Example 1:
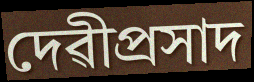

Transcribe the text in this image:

দেৱীপ্ৰসাদ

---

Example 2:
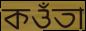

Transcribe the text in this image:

কওঁতা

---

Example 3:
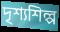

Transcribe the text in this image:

দৃশ্যশিল্প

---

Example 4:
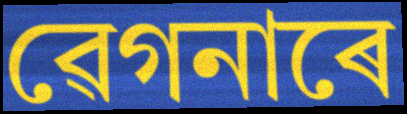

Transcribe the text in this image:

ৱেগনাৰে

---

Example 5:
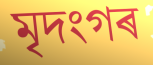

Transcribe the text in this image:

মৃদংগৰ